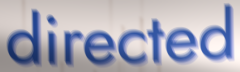
directed